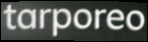
tarporeo